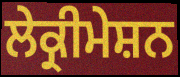
ਲੇਕ੍ਰੀਮੇਸ਼ਨ